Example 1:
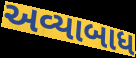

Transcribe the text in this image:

અવ્યાબાધ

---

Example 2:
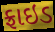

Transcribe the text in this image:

ફ્રાઇડ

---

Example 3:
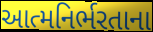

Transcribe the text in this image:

આત્મનિર્ભરતાના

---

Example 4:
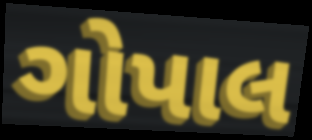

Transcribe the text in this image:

ગોપાલ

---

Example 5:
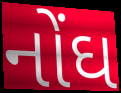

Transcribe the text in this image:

નોંઘ